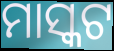
ମାସ୍କଟ